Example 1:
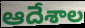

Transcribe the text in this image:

ఆదేశాల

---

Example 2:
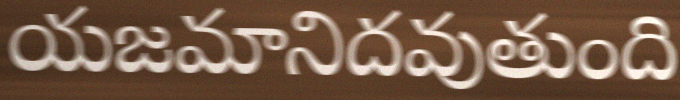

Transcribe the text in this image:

యజమానిదవుతుంది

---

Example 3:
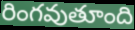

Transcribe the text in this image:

రింగవుతూంది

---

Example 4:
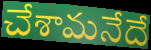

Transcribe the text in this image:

చేశామనేదే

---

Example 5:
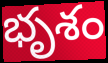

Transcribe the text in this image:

భృశం